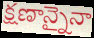
క్షణాన్నైనా